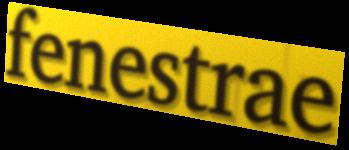
fenestrae